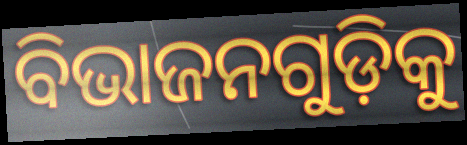
ବିଭାଜନଗୁଡ଼ିକୁ